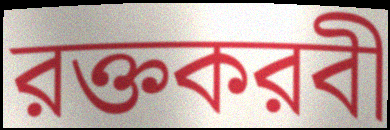
রক্তকরবী